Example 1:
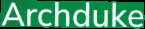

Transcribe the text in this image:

Archduke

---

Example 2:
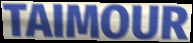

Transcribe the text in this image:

TAIMOUR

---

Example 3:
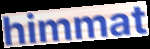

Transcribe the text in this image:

himmat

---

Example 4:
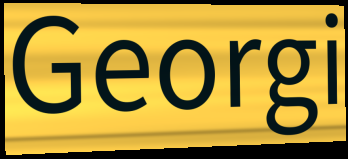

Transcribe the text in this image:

Georgi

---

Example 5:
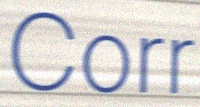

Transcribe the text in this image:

Corr